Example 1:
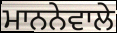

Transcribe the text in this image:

ਮਾਨਨੇਵਾਲੇ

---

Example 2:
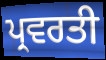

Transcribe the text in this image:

ਪ੍ਰਵਰਤੀ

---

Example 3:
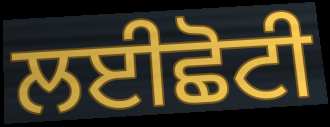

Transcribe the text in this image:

ਲਈਛੋਟੀ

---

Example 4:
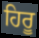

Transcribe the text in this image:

ਹਿਰੂ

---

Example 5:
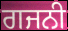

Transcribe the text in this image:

ਗਜਨੀ